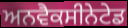
ਅਨਵੈਕਸੀਨੇਟੇਡ